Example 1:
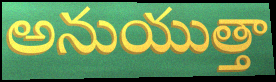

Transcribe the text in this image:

అనుయుత్తా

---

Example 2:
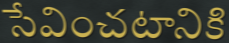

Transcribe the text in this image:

సేవించటానికి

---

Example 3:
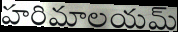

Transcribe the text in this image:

హరిమాలయమ్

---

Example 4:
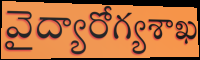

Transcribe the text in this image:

వైద్యారోగ్యశాఖ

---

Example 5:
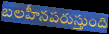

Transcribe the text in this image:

బలహీనపరుస్తుంది